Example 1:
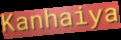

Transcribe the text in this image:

Kanhaiya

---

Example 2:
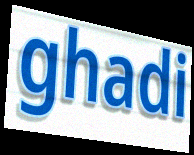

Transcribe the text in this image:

ghadi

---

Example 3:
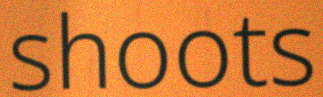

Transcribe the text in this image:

shoots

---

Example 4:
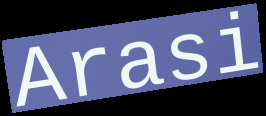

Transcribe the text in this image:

Arasi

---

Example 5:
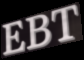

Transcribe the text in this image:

EBT